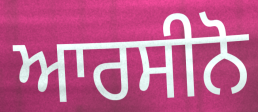
ਆਰਸੀਨੋ